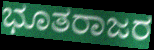
ಭೂತರಾಜರ